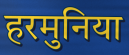
हरमुनिया